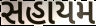
સહાયમ